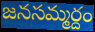
జనసమ్మర్దం